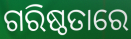
ଗରିଷ୍ଠତାରେ